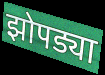
झोपड्या